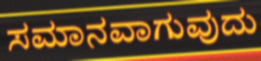
ಸಮಾನವಾಗುವುದು